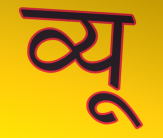
व्यू